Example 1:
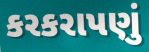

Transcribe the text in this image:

કરકરાપણું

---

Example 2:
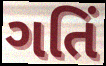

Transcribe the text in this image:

ગતિં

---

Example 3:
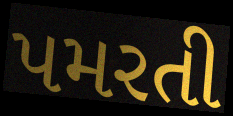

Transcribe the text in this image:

પમરતી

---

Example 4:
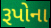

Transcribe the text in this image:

રૂપોના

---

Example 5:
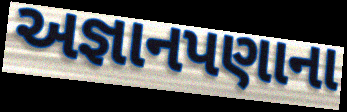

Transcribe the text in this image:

અજ્ઞાનપણાના